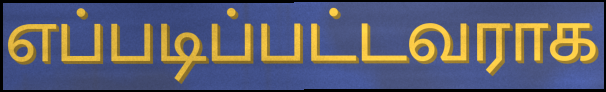
எப்படிப்பட்டவராக